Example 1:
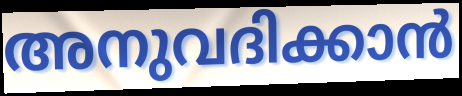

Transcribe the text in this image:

അനുവദിക്കാൻ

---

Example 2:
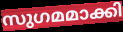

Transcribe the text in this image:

സുഗമമാക്കി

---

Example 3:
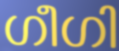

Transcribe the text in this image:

ഗീഗി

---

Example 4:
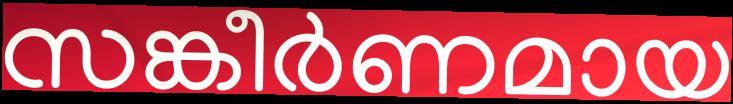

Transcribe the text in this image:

സങ്കീർണമായ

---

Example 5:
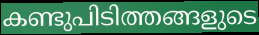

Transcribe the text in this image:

കണ്ടുപിടിത്തങ്ങളുടെ